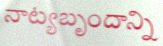
నాట్యబృందాన్ని